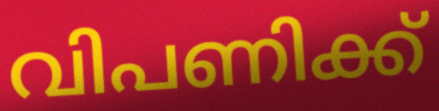
വിപണിക്ക്